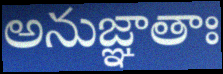
అనుజ్ఞాతాః